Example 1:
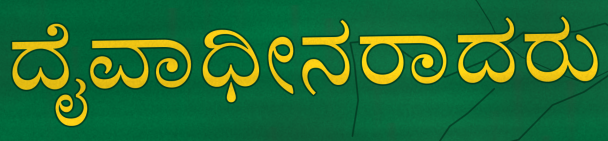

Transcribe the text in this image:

ದೈವಾಧೀನರಾದರು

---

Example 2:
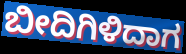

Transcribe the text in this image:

ಬೀದಿಗಿಳಿದಾಗ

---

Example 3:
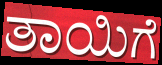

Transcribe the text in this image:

ತಾಯಿಗೆ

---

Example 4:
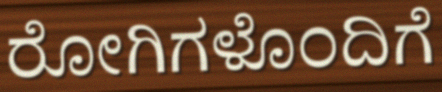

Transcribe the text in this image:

ರೋಗಿಗಳೊಂದಿಗೆ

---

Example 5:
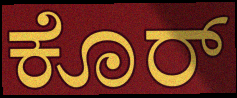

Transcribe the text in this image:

ಕೊರ್